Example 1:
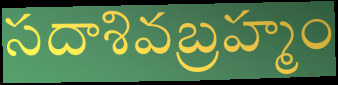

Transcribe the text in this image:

సదాశివబ్రహ్మం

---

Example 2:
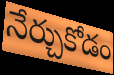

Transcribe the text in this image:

నేర్చుకోడం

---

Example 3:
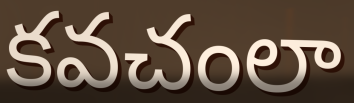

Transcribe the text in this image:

కవచంలా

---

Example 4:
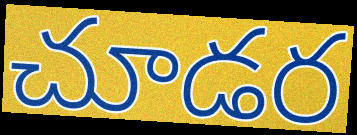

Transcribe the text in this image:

చూడర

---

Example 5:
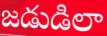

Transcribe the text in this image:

జడుడిలా